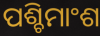
ପଶ୍ଚିମାଂଶ